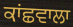
ਕਾਂਛਵਾਲਾ